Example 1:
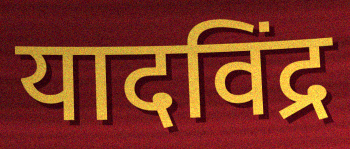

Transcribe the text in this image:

यादविंद्र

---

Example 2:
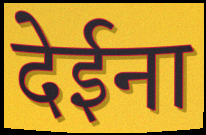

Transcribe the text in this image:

देईना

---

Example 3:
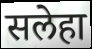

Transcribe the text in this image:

सलेहा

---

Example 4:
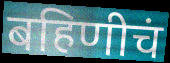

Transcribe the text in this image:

बहिणीचं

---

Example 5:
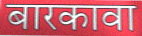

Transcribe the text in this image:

बारकावा